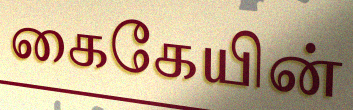
கைகேயின்